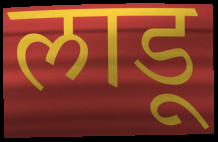
लाडू